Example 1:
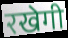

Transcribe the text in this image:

रखेगी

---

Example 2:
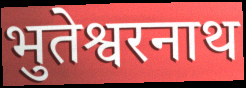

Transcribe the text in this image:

भुतेश्वरनाथ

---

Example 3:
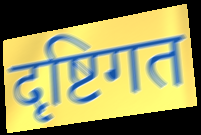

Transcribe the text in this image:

दृष्टिगत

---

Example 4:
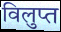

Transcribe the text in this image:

विलुप्त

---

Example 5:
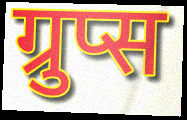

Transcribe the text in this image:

ग्रुप्स